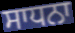
ਸਾਧਨਾ